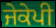
ਜੇਕੇਪੀ